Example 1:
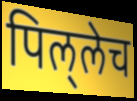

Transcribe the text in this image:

पिल्लेच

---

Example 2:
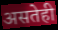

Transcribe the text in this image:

असतेही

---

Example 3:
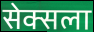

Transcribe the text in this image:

सेक्सला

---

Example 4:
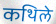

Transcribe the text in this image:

कथिले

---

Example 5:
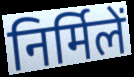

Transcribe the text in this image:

निर्मिलें